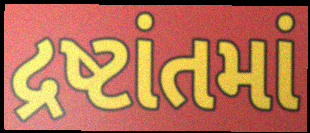
દ્રષ્ટાંતમાં